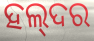
ହଲ୍‌ଦର